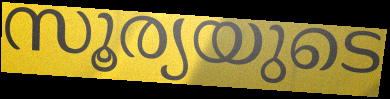
സൂര്യയുടെ